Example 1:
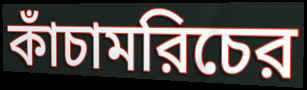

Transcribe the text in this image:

কাঁচামরিচের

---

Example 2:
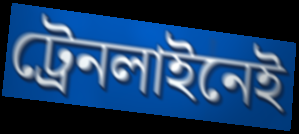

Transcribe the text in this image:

ট্রেনলাইনেই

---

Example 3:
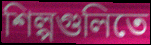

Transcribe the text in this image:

শিল্পগুলিতে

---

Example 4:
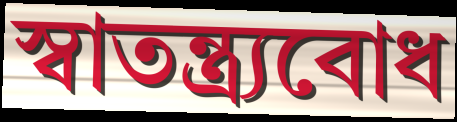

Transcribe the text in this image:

স্বাতন্ত্র্যবোধ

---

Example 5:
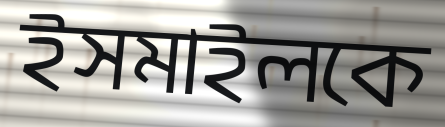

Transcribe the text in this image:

ইসমাইলকে